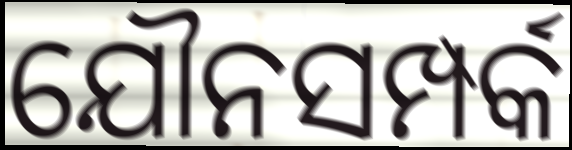
ଯୌନସମ୍ପର୍କ